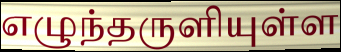
எழுந்தருளியுள்ள